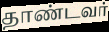
தாண்டவர்